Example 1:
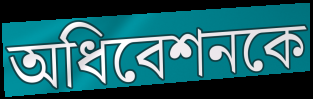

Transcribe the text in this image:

অধিবেশনকে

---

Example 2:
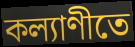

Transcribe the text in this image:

কল্যাণীতে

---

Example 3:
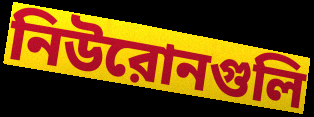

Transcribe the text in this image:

নিউরোনগুলি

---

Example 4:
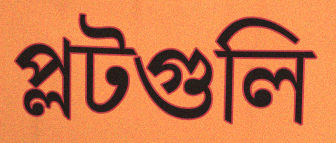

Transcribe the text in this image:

প্লটগুলি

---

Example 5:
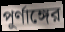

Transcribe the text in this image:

পূর্ণাঙ্গের